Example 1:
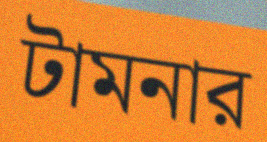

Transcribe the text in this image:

টামনার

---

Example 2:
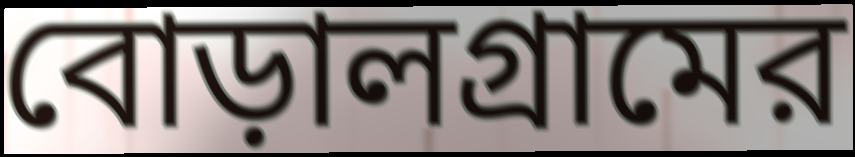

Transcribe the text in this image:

বোড়ালগ্রামের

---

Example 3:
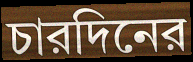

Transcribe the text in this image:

চারদিনের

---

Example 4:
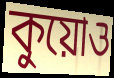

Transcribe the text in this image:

কুয়োও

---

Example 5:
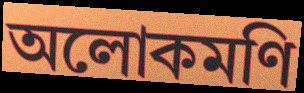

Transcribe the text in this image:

অলোকমণি